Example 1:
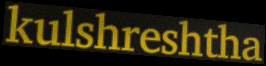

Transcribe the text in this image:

kulshreshtha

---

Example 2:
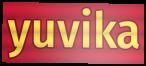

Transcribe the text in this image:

yuvika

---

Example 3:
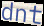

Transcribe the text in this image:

dnt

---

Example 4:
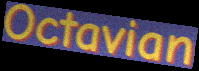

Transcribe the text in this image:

Octavian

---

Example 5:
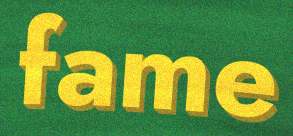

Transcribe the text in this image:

fame